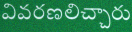
వివరణలిచ్చారు